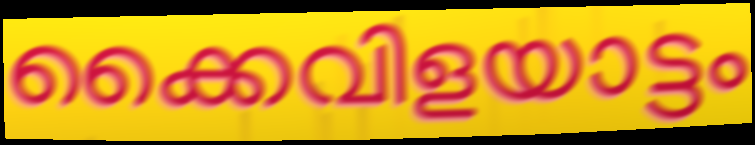
ക്കൈവിളയാട്ടം